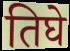
तिघे